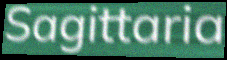
Sagittaria